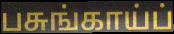
பசுங்காய்ப்